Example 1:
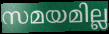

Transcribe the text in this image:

സമയമില്ല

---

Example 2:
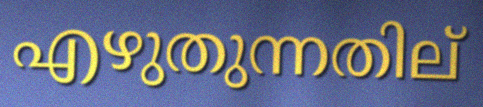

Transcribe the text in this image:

എഴുതുന്നതില്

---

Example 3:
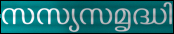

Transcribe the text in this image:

സസ്യസമൃദ്ധി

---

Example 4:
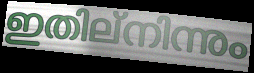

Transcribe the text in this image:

ഇതില്നിന്നും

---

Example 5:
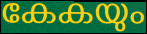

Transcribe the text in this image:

കേകയും